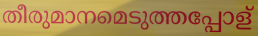
തീരുമാനമെടുത്തപ്പോള്